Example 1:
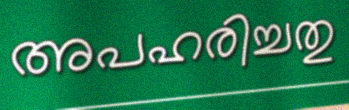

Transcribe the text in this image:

അപഹരിച്ചതു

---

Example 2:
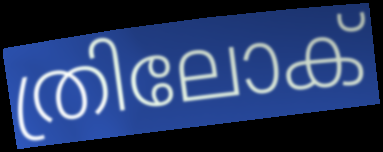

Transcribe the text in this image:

ത്രിലോക്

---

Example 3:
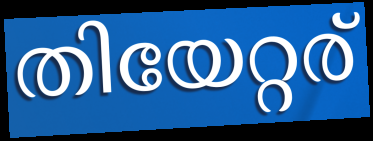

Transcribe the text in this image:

തിയേറ്റര്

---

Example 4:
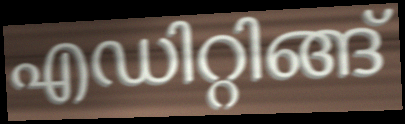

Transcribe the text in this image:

എഡിറ്റിങ്ങ്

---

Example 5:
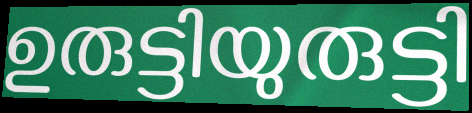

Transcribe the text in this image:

ഉരുട്ടിയുരുട്ടി